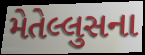
મેતેલ્લુસના